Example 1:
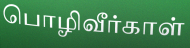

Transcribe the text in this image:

பொழிவீர்காள்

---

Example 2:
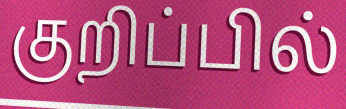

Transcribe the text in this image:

குறிப்பில்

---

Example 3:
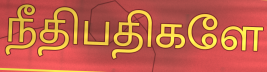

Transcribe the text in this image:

நீதிபதிகளே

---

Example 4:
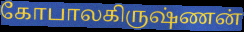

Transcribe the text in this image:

கோபாலகிருஷ்ணன்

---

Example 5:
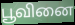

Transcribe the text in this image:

பூவினை